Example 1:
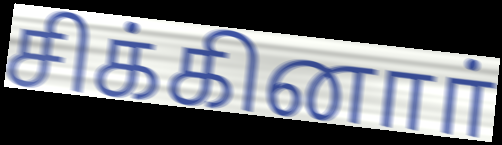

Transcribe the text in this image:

சிக்கினார்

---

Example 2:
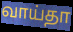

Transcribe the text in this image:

வாய்தா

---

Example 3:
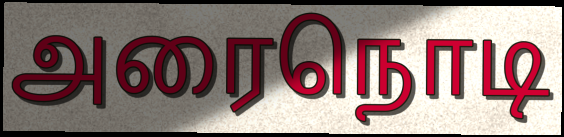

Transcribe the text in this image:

அரைநொடி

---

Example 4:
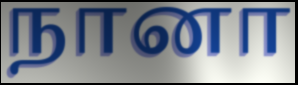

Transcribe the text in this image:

நானா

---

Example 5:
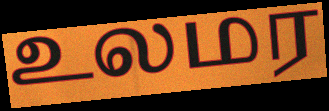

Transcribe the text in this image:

உலமர